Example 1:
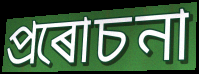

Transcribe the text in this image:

প্ৰৰোচনা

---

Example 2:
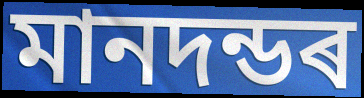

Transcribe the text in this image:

মানদন্ডৰ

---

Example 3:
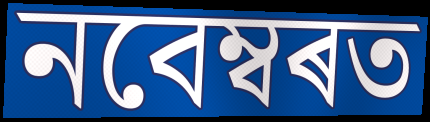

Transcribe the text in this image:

নবেম্বৰত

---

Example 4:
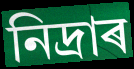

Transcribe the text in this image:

নিদ্ৰাৰ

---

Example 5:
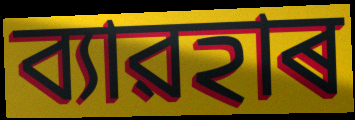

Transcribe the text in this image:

ব্যাৱহাৰ